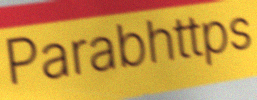
Parabhttps